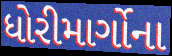
ધોરીમાર્ગોના